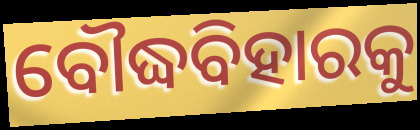
ବୌଦ୍ଧବିହାରକୁ